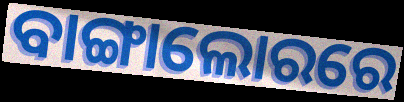
ବାଙ୍ଗାଲୋରରେ